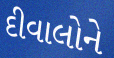
દીવાલોને